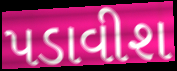
પડાવીશ